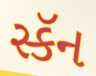
સ્કૅન